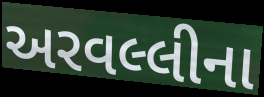
અરવલ્લીના